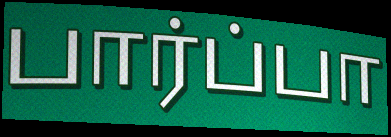
பார்ப்பா